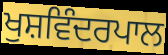
ਖੁਸ਼ਵਿੰਦਰਪਾਲ